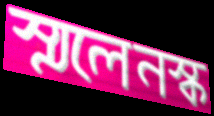
স্মলেনস্ক